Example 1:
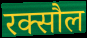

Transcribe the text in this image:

रक्सौल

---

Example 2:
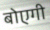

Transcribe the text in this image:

बोएगी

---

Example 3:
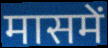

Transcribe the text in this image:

मासमें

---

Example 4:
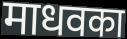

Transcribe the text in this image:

माधवका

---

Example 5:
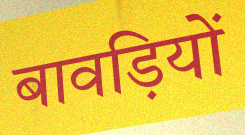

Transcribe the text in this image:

बावड़ियों